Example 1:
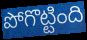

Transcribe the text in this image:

పోగొట్టింది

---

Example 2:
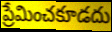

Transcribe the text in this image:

ప్రేమించకూడదు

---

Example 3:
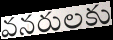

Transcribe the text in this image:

వనరులకు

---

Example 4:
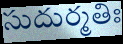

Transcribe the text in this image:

సుదుర్మతిః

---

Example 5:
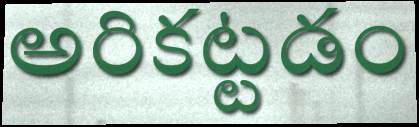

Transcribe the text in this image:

అరికట్టడం